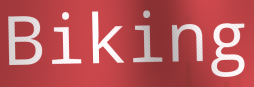
Biking